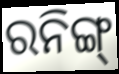
ରନିଙ୍ଗ୍